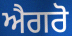
ਐਗਰੋ